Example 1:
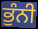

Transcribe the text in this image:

ਭੁੰਨੀ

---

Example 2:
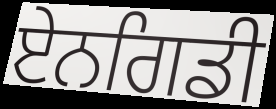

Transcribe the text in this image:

ਏਨਗਿਡੀ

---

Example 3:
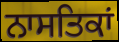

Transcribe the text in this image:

ਨਾਸਤਿਕਾਂ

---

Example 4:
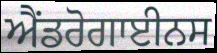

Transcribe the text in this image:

ਐਂਡਰੋਗਾਈਨਸ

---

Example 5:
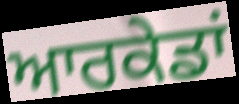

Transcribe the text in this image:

ਆਰਕੇਡਾਂ